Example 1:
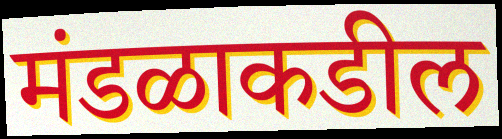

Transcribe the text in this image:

मंडळाकडील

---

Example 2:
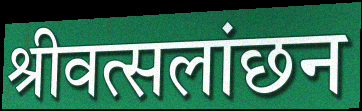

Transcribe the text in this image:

श्रीवत्सलांछन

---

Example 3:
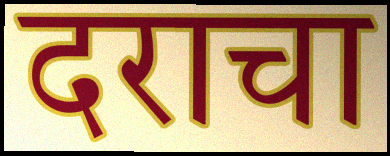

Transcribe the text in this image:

दराचा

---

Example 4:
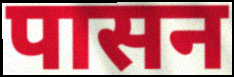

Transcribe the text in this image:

पासन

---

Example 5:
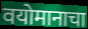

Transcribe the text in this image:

वयोमानाचा